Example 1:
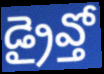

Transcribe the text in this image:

డ్రైవ్తో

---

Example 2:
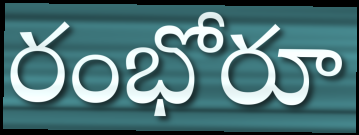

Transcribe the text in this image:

రంభోరూ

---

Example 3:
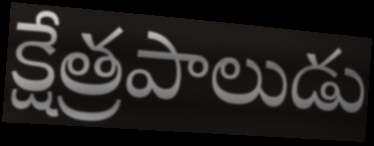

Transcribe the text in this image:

క్షేత్రపాలుడు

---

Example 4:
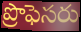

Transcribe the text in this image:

ప్రొఫెసరు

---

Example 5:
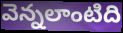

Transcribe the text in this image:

వెన్నలాంటిది